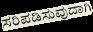
ಸರಿಪಡಿಸುವುದಾಗಿ